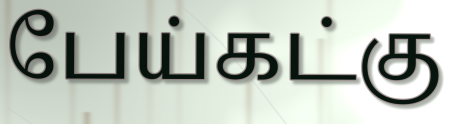
பேய்கட்கு